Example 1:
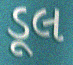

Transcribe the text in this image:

ડૂલ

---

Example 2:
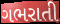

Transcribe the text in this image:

ગભરાતી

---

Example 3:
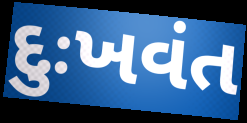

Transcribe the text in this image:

દુઃખવંત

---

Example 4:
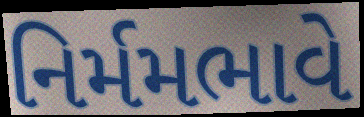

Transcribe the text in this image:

નિર્મમભાવે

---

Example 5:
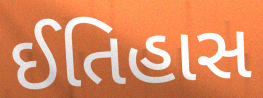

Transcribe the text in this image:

ઈતિહાસ